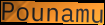
Pounamu